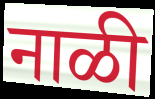
नाळी